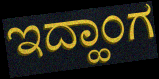
ಇದ್ಹಾಂಗ